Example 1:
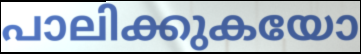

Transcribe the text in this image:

പാലിക്കുകയോ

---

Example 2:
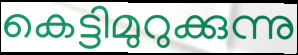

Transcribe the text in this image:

കെട്ടിമുറുക്കുന്നു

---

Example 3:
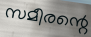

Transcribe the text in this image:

സമീരന്റെ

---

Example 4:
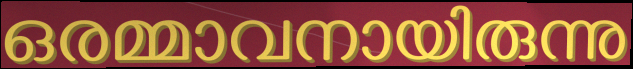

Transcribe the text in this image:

ഒരമ്മാവനായിരുന്നു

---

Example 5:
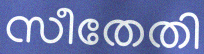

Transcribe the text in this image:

സീതേതി